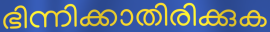
ഭിന്നിക്കാതിരിക്കുക